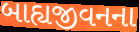
બાહ્યજીવનના